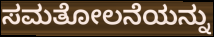
ಸಮತೋಲನೆಯನ್ನು